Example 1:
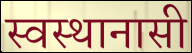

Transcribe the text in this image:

स्वस्थानासी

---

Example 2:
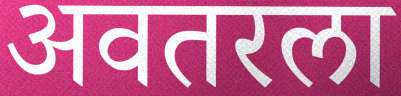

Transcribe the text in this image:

अवतरला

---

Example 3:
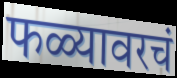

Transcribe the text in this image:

फळ्यावरचं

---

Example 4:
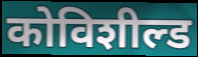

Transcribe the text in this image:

कोविशील्ड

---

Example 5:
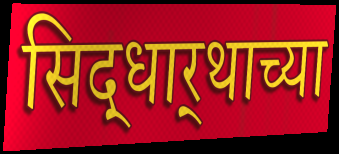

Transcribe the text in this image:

सिद्धार्थाच्या